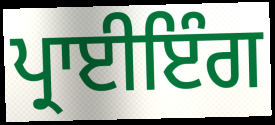
ਪ੍ਰਾਈਇੰਗ